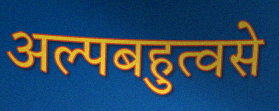
अल्पबहुत्वसे